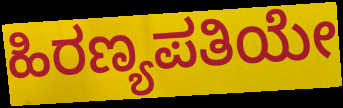
ಹಿರಣ್ಯಪತಿಯೇ